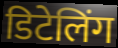
डिटेलिंग